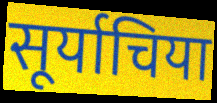
सूर्याचिया